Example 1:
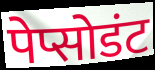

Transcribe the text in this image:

पेप्सोडंट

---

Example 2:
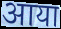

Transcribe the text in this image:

आया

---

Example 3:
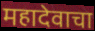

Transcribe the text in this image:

महादेवाचा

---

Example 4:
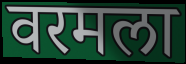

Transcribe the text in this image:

वरमला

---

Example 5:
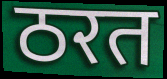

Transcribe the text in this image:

ठरत